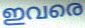
ഇവരെ